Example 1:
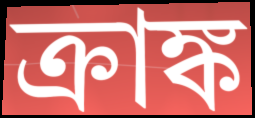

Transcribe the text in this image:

ক্রাঙ্ক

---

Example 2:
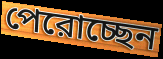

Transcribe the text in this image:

পেরোচ্ছেন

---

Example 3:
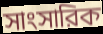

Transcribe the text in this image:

সাংসারিক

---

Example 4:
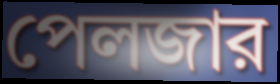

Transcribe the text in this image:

পেলজার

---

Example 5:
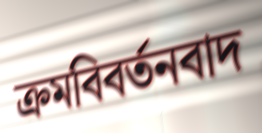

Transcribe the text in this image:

ক্রমবিবর্তনবাদ